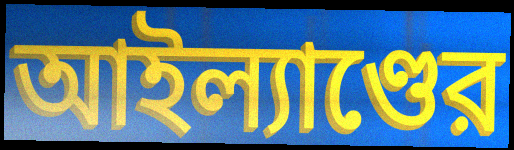
আইল্যাণ্ডের